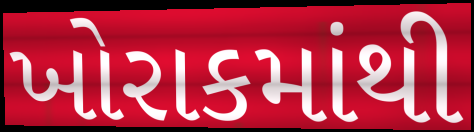
ખોરાકમાંથી